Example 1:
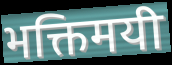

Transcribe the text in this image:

भक्तिमयी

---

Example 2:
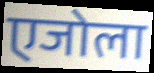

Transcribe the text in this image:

एजोला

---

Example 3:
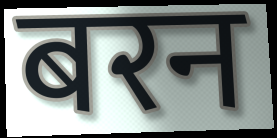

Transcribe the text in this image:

बरन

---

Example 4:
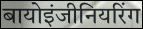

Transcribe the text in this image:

बायोइंजीनियरिंग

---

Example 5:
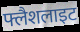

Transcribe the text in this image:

फ्लैशलाइट